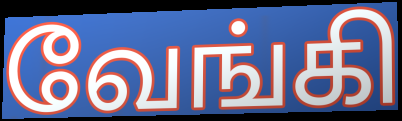
வேங்கி